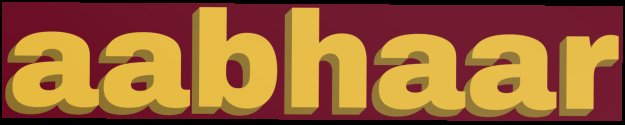
aabhaar